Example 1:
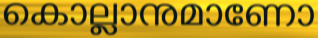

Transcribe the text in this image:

കൊല്ലാനുമാണോ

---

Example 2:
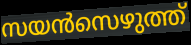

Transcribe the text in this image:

സയൻസെഴുത്ത്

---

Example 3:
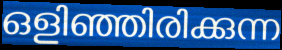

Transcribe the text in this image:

ഒളിഞ്ഞിരിക്കുന്ന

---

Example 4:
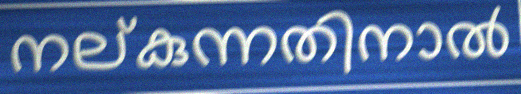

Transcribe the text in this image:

നല്കുന്നതിനാൽ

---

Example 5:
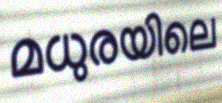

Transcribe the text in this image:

മധുരയിലെ